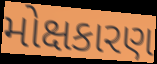
મોક્ષકારણ